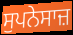
ਸੁਪਨੇਸਾਜ਼